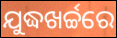
ଯୁଦ୍ଧଖର୍ଚ୍ଚରେ